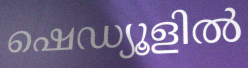
ഷെഡ്യൂളിൽ